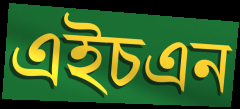
এইচএন